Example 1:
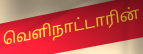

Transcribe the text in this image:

வெளிநாட்டாரின்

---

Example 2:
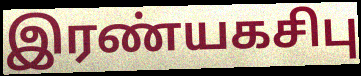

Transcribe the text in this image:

இரண்யகசிபு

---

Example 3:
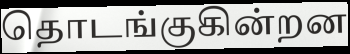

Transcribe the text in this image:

தொடங்குகின்றன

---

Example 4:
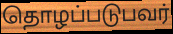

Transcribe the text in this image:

தொழப்படுபவர்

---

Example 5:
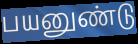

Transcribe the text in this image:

பயனுண்டு